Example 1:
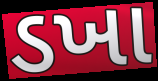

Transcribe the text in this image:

ડખા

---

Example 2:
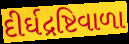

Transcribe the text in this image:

દીર્ઘદ્રષ્ટિવાળા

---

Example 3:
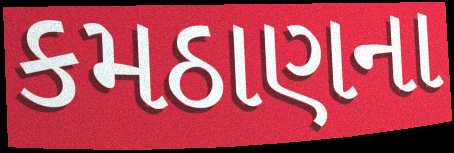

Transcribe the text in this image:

કમઠાણના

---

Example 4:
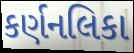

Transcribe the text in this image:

કર્ણનલિકા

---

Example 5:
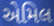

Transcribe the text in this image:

એમિલ